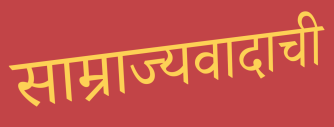
साम्राज्यवादाची